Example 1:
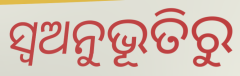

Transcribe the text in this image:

ସ୍ୱଅନୁଭୂତିରୁ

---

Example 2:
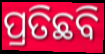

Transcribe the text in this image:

ପ୍ରତିଛବି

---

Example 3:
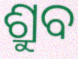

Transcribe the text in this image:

ଶ୍ରୁବ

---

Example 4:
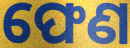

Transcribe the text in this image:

ଫେଣ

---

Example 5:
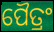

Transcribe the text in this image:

ପୈତ୍ରଂ